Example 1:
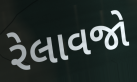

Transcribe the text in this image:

રેલાવજો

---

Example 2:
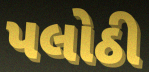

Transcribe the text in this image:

પલોઠી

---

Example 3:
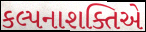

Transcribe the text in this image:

કલ્પનાશક્તિએ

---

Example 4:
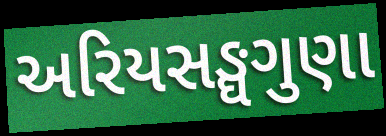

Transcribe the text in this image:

અરિયસઙ્ઘગુણા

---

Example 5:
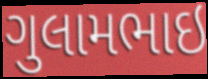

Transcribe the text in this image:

ગુલામભાઇ